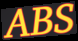
ABS